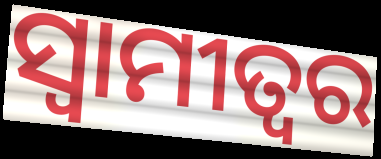
ସ୍ୱାମୀତ୍ୱର